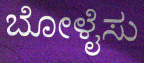
ಬೋಳೈಸು